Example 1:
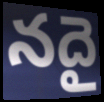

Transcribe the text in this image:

నదై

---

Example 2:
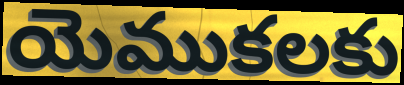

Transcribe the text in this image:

యెముకలకు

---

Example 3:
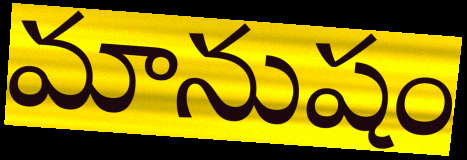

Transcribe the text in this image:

మానుషం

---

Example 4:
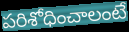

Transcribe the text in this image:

పరిశోధించాలంటే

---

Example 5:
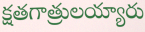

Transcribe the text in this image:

క్షతగాత్రులయ్యారు